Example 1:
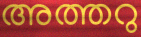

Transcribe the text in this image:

അത്തറു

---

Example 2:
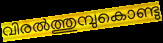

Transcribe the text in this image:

വിരൽത്തുമ്പുകൊണ്ടു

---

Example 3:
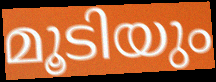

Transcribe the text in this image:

മൂടിയും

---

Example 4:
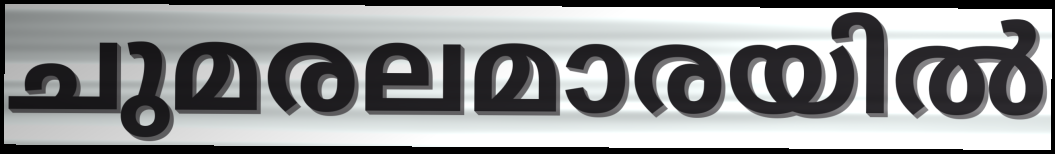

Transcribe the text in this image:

ചുമരലമാരയിൽ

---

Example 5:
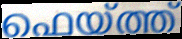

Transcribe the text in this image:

ഫെയ്ത്ത്